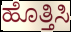
ಹೊತ್ತಿಸಿ